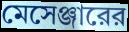
মেসেঞ্জারের